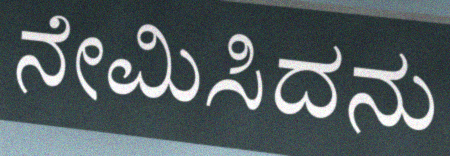
ನೇಮಿಸಿದನು